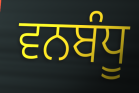
ਵਨਬੰਧੂ